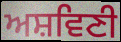
ਅਸ਼ਵਿਣੀ